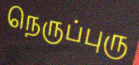
நெருப்புரு